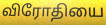
விரோதியை